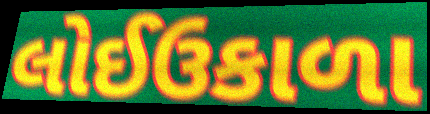
લોઈઉકાળા